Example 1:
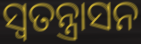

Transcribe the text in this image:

ସ୍ଵତନ୍ତ୍ରାସନ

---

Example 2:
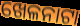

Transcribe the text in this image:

ଖେଳନାଟା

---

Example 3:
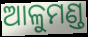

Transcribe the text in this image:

ଆଳୁମଣ୍ଡ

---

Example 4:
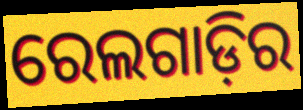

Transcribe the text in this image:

ରେଲଗାଡ଼ିର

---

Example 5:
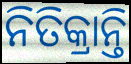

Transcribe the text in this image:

ନିତିକ୍ରାନ୍ତି